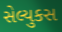
સેલ્યુકસ